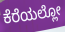
ಕೆರೆಯಲ್ಲೋ